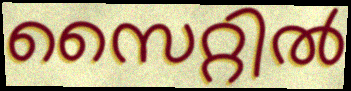
സൈറ്റിൽ